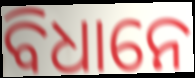
ବିଧାନେ